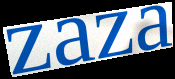
zaza